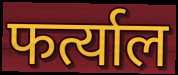
फर्त्याल